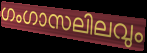
ഗംഗാസലിലവും